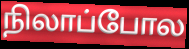
நிலாப்போல